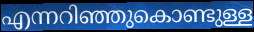
എന്നറിഞ്ഞുകൊണ്ടുള്ള